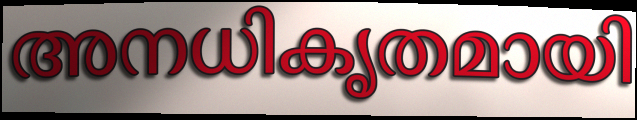
അനധികൃതമായി